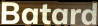
Batard